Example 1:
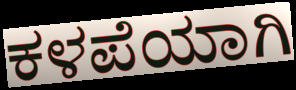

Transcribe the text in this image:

ಕಳಪೆಯಾಗಿ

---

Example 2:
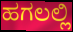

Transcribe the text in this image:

ಹಗಲಲ್ಲಿ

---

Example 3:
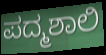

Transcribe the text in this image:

ಪದ್ಮಶಾಲಿ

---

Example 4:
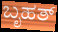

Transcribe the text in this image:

ಬೃಹತ್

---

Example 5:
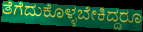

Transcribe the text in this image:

ತೆಗೆದುಕೊಳ್ಳಬೇಕಿದ್ದರೂ